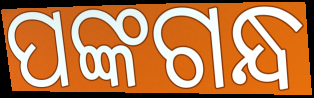
ପଙ୍କଗନ୍ଧ